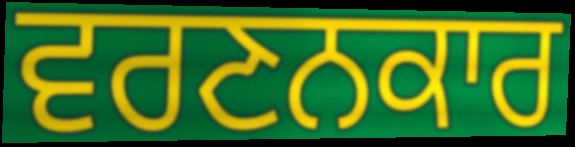
ਵਰਣਨਕਾਰ